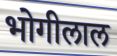
भोगीलाल